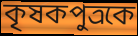
কৃষকপুত্রকে